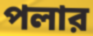
পলার